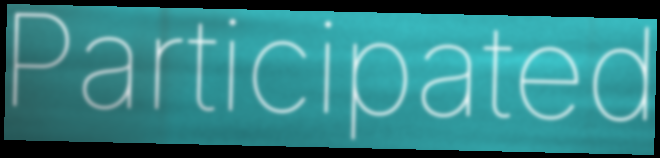
Participated